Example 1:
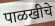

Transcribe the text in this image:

पाळखीचे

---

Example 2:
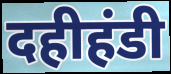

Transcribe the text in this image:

दहीहंडी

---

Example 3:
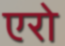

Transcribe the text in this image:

एरो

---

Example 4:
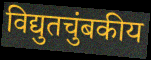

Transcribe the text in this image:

विद्युतचुंबकीय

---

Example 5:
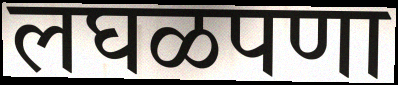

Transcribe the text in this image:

लघळपणा